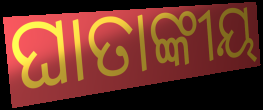
ଘାତାଙ୍କୀୟ